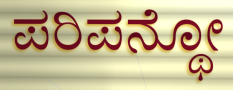
ಪರಿಪನ್ಥೋ